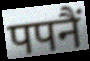
पपनैं